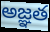
అజ్ఞత